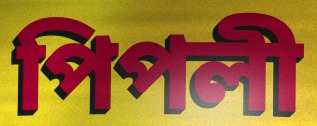
পিপলী